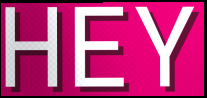
HEY